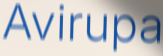
Avirupa